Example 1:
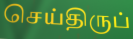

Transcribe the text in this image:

செய்திருப்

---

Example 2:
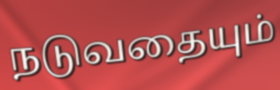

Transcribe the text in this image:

நடுவதையும்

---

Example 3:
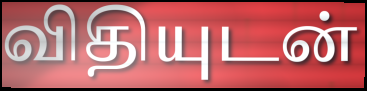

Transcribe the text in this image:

விதியுடன்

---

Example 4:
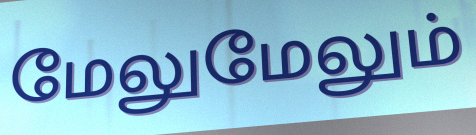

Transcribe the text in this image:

மேலுமேலும்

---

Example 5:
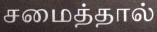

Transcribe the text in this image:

சமைத்தால்